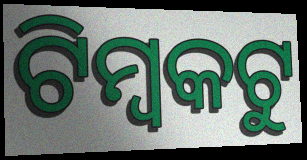
ଟିମ୍ବକଟୁ